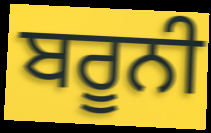
ਬਰੂਨੀ